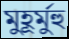
মুহূর্মুহু